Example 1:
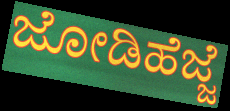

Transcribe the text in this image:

ಜೋಡಿಹೆಜ್ಜೆ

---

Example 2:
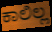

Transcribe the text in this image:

ಕಾಲಿಲ್ಲ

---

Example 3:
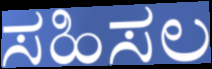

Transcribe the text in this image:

ಸಹಿಸಲ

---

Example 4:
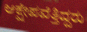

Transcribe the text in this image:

ಆಕ್ಷೇಪವೆತ್ತಿದ್ದರು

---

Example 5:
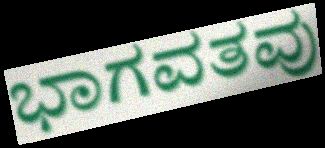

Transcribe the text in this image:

ಭಾಗವತವು